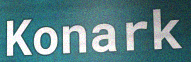
Konark